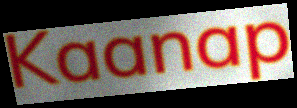
Kaanap